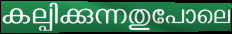
കല്പിക്കുന്നതുപോലെ